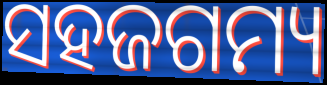
ସହଜଗମ୍ୟ